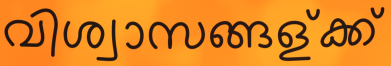
വിശ്വാസങ്ങള്ക്ക്